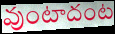
వుంటాదంట